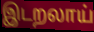
இடறலாய்